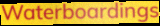
Waterboardings